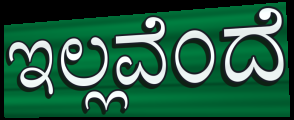
ಇಲ್ಲವೆಂದೆ